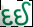
દઈ